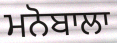
ਮਨੋਬਾਲਾ